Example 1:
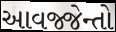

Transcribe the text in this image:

આવજ્જેન્તો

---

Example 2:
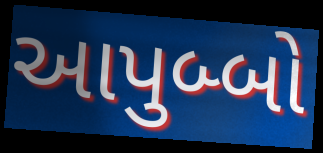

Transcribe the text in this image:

આપુબ્બો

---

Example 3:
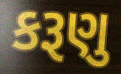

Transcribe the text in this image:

કરૂણુ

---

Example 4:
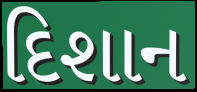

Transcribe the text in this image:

દિશાન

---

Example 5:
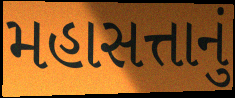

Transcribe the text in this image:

મહાસત્તાનું